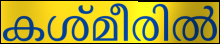
കശ്മീരിൽ